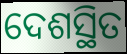
ଦେଶସ୍ଥିତ